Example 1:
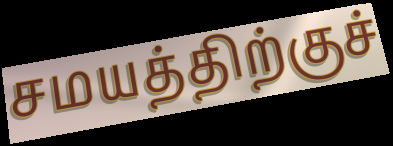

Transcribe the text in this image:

சமயத்திற்குச்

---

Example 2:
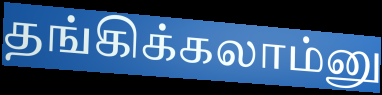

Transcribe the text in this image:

தங்கிக்கலாம்னு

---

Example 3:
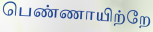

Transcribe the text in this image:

பெண்ணாயிற்றே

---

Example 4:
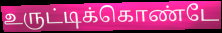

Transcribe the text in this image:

உருட்டிக்கொண்டே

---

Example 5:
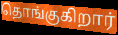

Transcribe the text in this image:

தொங்குகிறார்